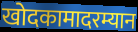
खोदकामादरम्यान